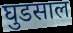
घुडसाल